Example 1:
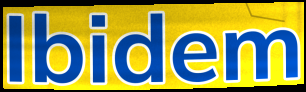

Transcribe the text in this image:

Ibidem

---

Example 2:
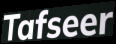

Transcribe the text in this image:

Tafseer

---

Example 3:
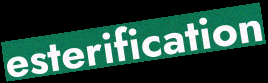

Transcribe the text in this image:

esterification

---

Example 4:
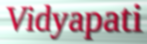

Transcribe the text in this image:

Vidyapati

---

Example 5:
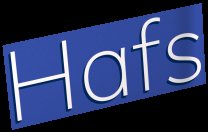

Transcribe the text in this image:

Hafs